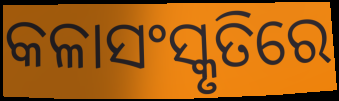
କଳାସଂସ୍କୃତିରେ